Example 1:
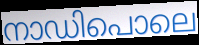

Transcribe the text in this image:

നാഡിപൊലെ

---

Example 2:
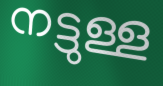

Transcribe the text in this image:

നട്ടുള്ള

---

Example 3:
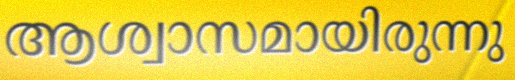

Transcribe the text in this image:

ആശ്വാസമായിരുന്നു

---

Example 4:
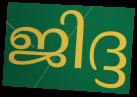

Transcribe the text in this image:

ജിദ്ദ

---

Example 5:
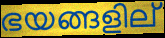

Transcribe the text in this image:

ഭയങ്ങളില്